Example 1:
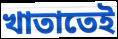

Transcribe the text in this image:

খাতাতেই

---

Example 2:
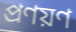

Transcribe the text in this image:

প্রণয়ণ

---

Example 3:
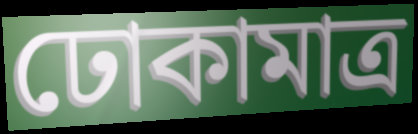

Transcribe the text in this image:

ঢোকামাত্র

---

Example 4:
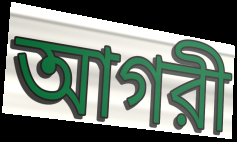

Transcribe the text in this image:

আগরী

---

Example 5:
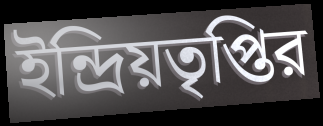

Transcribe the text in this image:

ইন্দ্রিয়তৃপ্তির